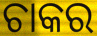
ଚାକର